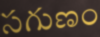
సగుణం